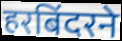
हरबिंदरने